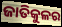
ଜାତିକୁଳର